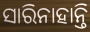
ସାରିନାହାନ୍ତି